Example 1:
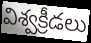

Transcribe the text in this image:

విశ్వక్రీడలు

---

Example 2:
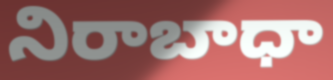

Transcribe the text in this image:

నిరాబాధా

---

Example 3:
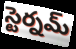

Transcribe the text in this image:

స్టెర్నమ్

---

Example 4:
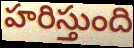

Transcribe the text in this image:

హరిస్తుంది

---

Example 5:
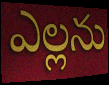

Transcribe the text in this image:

ఎల్లను